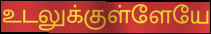
உடலுக்குள்ளேயே